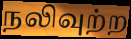
நலிவுற்ற